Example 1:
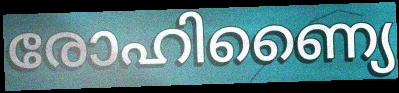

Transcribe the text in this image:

രോഹിണ്യൈ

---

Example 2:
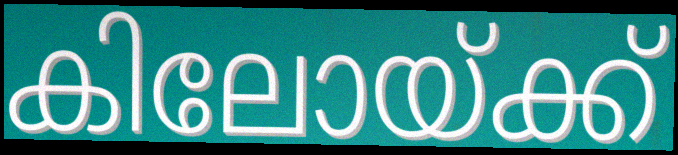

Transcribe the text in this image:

കിലോയ്ക്ക്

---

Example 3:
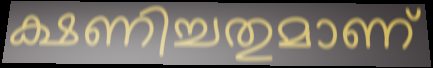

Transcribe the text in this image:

ക്ഷണിച്ചതുമാണ്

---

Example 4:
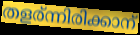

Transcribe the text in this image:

തളര്ന്നിരിക്കാന്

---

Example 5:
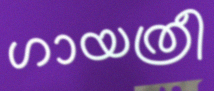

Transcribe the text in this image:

ഗായത്രീ